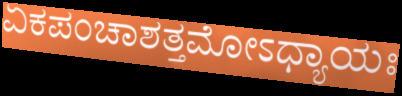
ಏಕಪಂಚಾಶತ್ತಮೋಽಧ್ಯಾಯಃ